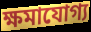
ক্ষমাযোগ্য